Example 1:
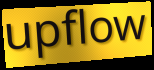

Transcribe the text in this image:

upflow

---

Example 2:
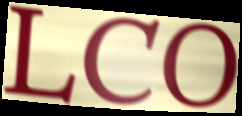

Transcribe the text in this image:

LCO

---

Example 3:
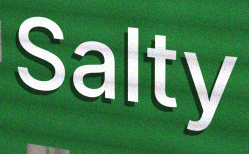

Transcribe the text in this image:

Salty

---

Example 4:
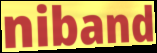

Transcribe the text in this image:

niband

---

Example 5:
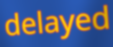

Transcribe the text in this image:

delayed